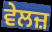
ਵੇਲਜ਼